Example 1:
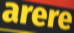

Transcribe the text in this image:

arere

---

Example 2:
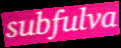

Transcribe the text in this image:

subfulva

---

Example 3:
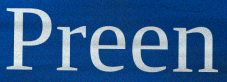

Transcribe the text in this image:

Preen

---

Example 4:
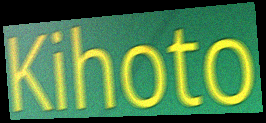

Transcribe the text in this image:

Kihoto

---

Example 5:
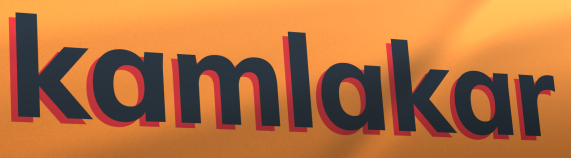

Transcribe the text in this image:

kamlakar